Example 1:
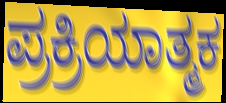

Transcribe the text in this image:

ಪ್ರಕ್ರಿಯಾತ್ಮಕ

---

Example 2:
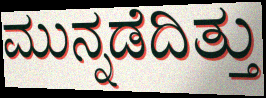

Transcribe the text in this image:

ಮುನ್ನಡೆದಿತ್ತು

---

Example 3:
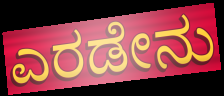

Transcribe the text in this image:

ಎರಡೇನು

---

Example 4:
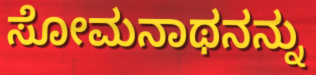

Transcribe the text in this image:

ಸೋಮನಾಥನನ್ನು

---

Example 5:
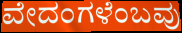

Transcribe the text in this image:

ವೇದಂಗಳೆಂಬವು